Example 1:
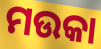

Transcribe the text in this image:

ମଉକା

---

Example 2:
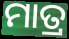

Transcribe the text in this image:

ମାତ୍ର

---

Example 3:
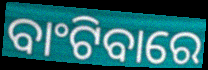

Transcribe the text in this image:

ବାଂଟିବାରେ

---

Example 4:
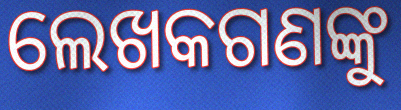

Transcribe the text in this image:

ଲେଖକଗଣଙ୍କୁ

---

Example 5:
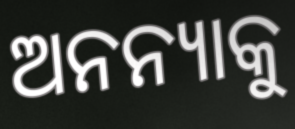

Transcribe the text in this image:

ଅନନ୍ୟାକୁ